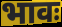
भावः